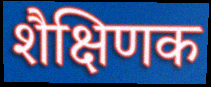
शैक्षिणक